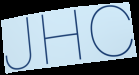
JHC